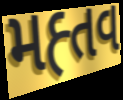
મહ્તવ